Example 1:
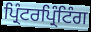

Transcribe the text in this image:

ਪ੍ਰਿੰਟਰਪ੍ਰਿੰਟਿੰਗ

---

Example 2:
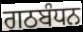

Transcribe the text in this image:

ਗਠਬੰਧਨ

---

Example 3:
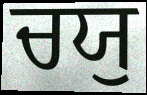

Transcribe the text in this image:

ਚਯੁ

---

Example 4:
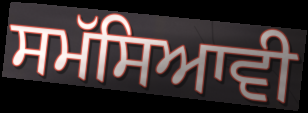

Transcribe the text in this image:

ਸਮੱਸਿਆਵੀ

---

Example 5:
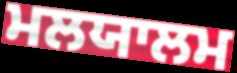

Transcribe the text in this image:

ਮਲਯਾਲਮ